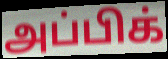
அப்பிக்